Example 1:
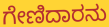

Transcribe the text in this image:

ಗೇಣಿದಾರನು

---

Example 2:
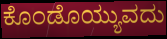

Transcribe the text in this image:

ಕೊಂಡೊಯ್ಯುವದು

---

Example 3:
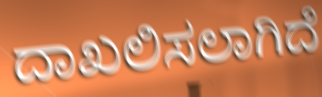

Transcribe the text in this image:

ದಾಖಲಿಸಲಾಗಿದೆ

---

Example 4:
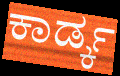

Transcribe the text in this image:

ಕಾರ್ಡ್ಕ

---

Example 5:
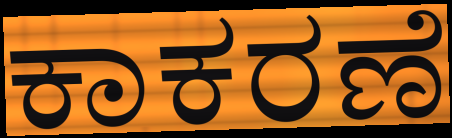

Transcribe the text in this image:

ಕಾಕರಣೆ